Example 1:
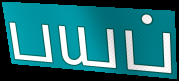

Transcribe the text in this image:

பயப்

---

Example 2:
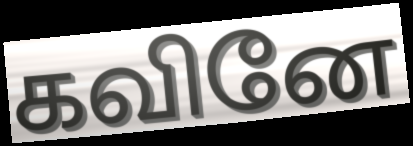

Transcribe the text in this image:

கவினே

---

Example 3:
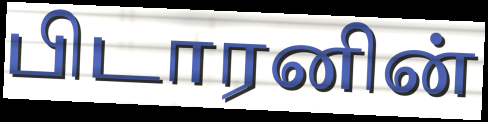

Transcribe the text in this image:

பிடாரனின்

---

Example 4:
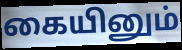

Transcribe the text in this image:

கையினும்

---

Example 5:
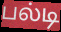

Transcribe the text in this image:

பல்டி